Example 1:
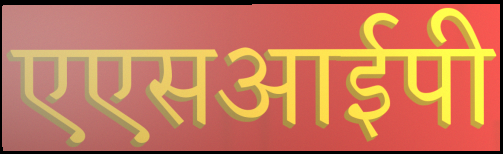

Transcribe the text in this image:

एएसआईपी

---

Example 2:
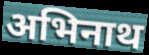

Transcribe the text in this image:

अभिनाथ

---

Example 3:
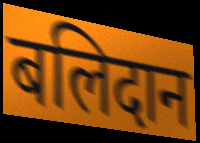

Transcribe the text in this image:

बलिदान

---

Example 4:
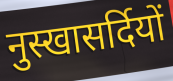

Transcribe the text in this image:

नुस्खासर्दियों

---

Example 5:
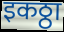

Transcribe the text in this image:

इकठ्ठा